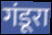
गंडूरा